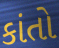
કાંતો